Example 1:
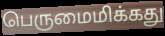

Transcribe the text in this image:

பெருமைமிக்கது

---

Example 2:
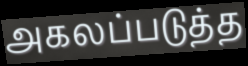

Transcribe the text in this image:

அகலப்படுத்த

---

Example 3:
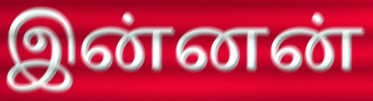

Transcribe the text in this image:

இன்னன்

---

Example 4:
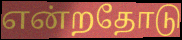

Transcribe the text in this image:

என்றதோடு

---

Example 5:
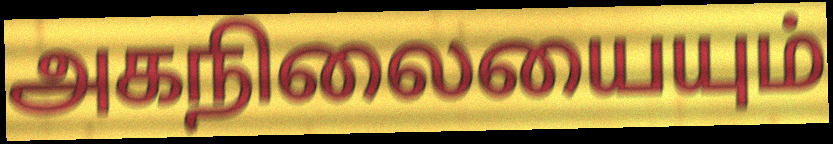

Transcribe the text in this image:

அகநிலையையும்